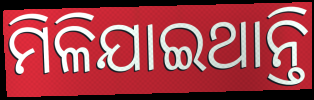
ମିଳିଯାଇଥାନ୍ତି